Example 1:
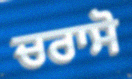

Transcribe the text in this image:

ਚਰਾਸੋ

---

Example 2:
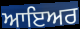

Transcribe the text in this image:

ਆਇਅਰ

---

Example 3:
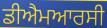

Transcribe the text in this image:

ਡੀਐਮਆਰਸੀ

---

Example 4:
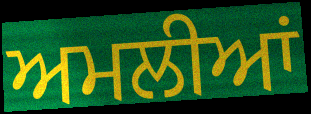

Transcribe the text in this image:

ਅਮਲੀਆਂ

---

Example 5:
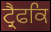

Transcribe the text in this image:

ਟ੍ਰੈਫਕਿ